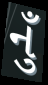
નુઁ